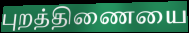
புறத்திணையை